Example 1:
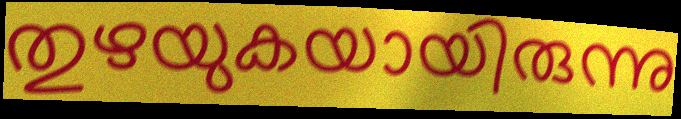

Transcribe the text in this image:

തുഴയുകയായിരുന്നു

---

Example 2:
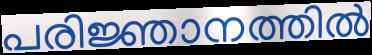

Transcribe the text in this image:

പരിജ്ഞാനത്തിൽ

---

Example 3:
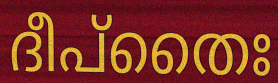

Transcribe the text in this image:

ദീപ്തൈഃ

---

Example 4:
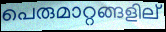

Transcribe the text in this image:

പെരുമാറ്റങ്ങളില്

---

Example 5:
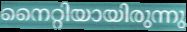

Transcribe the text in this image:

നൈറ്റിയായിരുന്നു